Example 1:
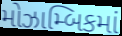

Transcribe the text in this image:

મોઝામ્બિકમાં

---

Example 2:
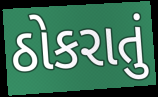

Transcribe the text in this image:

ઠોકરાતું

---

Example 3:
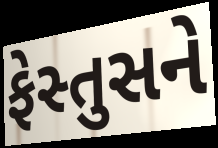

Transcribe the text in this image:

ફેસ્તુસને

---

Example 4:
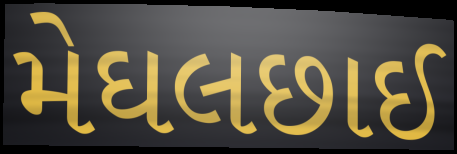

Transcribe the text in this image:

મેઘલછાઈ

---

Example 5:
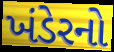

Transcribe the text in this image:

ખંડેરનો